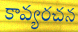
కావ్యరచన